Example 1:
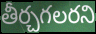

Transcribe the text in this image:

తీర్చగలరని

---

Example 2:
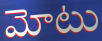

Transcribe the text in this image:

మోటు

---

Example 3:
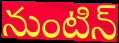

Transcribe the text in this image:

నుంటిన్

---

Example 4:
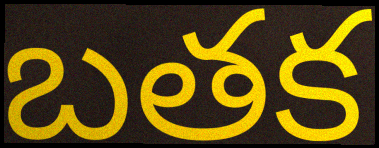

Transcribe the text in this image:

బతక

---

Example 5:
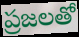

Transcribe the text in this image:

ప్రజలతో